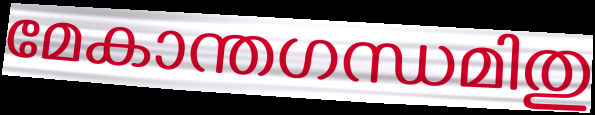
മേകാന്തഗന്ധമിതു